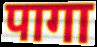
पागा